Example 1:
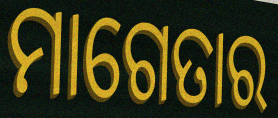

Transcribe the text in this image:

ମାଗେତାର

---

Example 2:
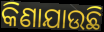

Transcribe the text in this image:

କିଣାଯାଉଛି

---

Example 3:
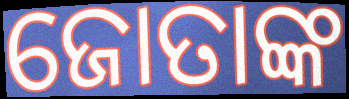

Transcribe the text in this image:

ଜୋତାଙ୍କ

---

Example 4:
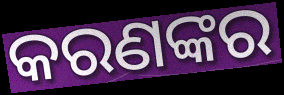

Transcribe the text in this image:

କରଣଙ୍କର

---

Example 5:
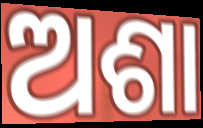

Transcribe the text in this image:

ଅଶା